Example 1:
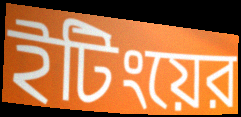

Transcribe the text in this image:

ইটিংয়ের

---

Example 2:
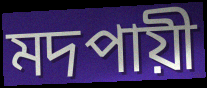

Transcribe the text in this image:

মদপায়ী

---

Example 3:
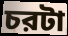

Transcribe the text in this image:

চরটা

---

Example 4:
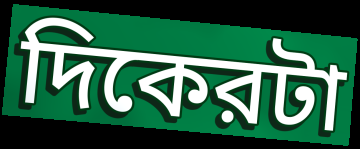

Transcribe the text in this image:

দিকেরটা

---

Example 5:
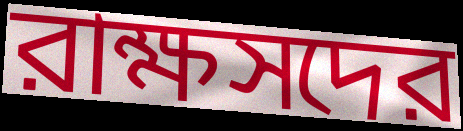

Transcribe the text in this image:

রাক্ষসদের